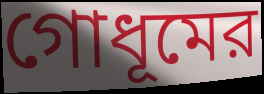
গোধূমের